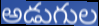
అడుగుల